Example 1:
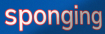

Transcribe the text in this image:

sponging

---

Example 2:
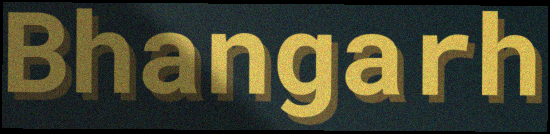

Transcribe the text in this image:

Bhangarh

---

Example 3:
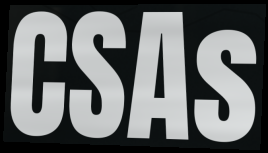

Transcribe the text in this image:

CSAs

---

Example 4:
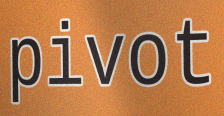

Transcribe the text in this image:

pivot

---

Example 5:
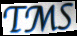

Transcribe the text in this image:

TMS